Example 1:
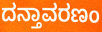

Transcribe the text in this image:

ದನ್ತಾವರಣಂ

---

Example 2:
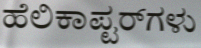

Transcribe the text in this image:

ಹೆಲಿಕಾಪ್ಟರ್‌ಗಳು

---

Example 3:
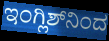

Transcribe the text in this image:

ಇಂಗ್ಲಿಶ್‌ನಿಂದ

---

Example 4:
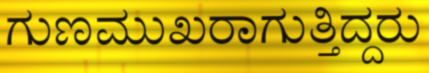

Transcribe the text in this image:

ಗುಣಮುಖರಾಗುತ್ತಿದ್ದರು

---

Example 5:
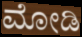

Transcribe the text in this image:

ಮೋಡಿ